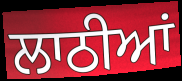
ਲਾਠੀਆਂ